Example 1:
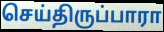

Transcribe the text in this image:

செய்திருப்பாரா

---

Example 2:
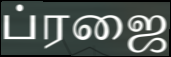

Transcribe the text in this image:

ப்ரஜை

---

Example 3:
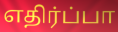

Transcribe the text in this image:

எதிர்ப்பா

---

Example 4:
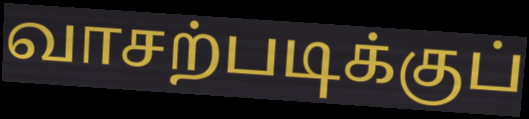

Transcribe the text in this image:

வாசற்படிக்குப்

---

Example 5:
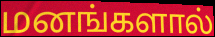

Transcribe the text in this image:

மனங்களால்